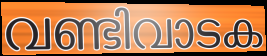
വണ്ടിവാടക